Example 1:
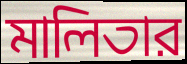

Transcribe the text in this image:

মালিতার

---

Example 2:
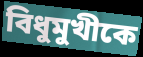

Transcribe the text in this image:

বিধুমুখীকে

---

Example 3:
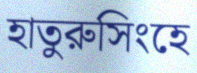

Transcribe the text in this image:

হাতুরুসিংহে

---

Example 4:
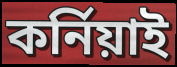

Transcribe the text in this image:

কর্নিয়াই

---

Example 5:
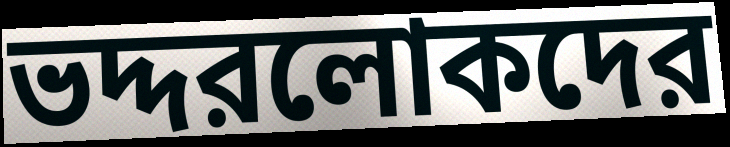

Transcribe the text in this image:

ভদ্দরলোকদের